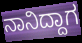
ನಾನಿದ್ದಾಗ